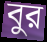
বুর